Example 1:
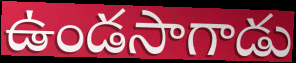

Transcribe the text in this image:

ఉండసాగాడు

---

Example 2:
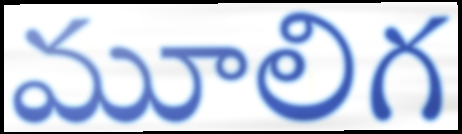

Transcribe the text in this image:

మూలిగ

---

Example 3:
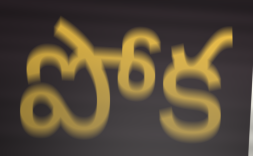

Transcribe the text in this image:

పోక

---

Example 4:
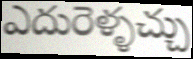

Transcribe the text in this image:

ఎదురెళ్ళచ్చు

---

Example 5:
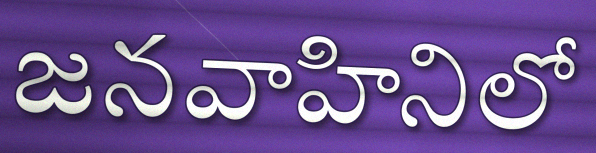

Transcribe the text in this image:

జనవాహినిలో